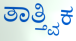
ತಾತ್ತ್ವಿಕ